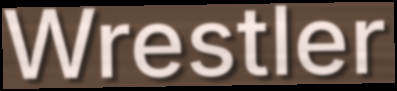
Wrestler